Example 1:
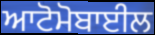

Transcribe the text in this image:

ਆਟੋਮੋਬਾਈਲ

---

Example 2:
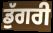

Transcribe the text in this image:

ਡੁੱਗਰੀ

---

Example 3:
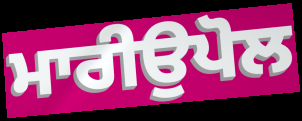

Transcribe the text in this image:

ਮਾਰੀਉਪੋਲ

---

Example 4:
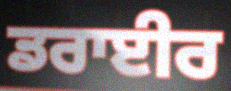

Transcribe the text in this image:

ਡਰਾਈਰ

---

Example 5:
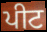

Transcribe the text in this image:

ਪੀਟ